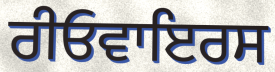
ਰੀਓਵਾਇਰਸ